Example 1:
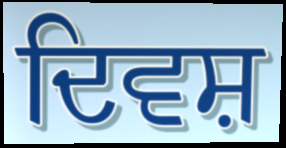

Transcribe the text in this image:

ਦਿਵਸ਼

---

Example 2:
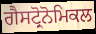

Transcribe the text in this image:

ਗੈਸਟ੍ਰੋਨੋਮਿਕਲ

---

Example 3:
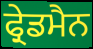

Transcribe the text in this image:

ਫ੍ਰੇਡਮੈਨ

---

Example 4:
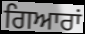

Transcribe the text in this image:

ਗਿਆਰਾਂ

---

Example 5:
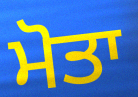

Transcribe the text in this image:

ਮੋਤਾ